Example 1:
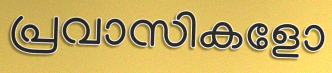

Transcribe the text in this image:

പ്രവാസികളോ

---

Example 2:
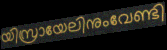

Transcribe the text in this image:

യിസ്രായേലിനുംവേണ്ടി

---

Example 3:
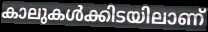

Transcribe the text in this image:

കാലുകൾക്കിടയിലാണ്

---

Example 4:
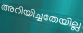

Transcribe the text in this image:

അറിയിച്ചതേയില്ല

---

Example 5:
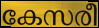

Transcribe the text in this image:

കേസരീ